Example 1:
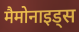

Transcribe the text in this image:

मैमोनाइड्स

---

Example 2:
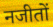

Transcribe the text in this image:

नजीतों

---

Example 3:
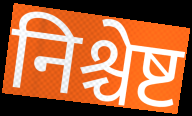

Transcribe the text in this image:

निश्चेष्ट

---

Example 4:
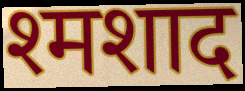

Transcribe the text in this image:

श्मशाद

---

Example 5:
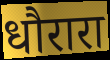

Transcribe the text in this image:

धौरारा